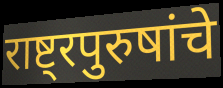
राष्ट्रपुरुषांचे